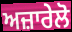
ਅਜ਼ਾਰੇਲੋ